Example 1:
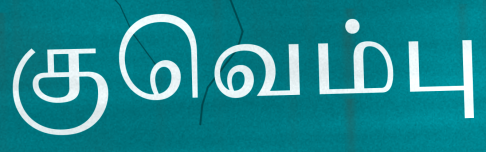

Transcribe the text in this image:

குவெம்பு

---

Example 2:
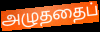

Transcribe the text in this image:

அழுததைப்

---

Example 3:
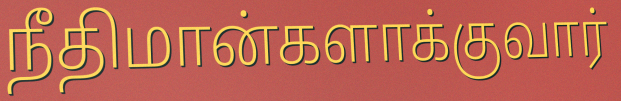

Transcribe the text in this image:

நீதிமான்களாக்குவார்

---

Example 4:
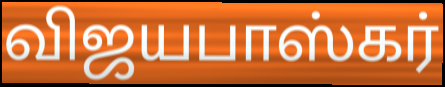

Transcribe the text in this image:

விஜயபாஸ்கர்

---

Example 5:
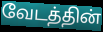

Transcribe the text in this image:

வேடத்தின்